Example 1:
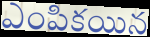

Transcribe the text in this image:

ఎంపికయిన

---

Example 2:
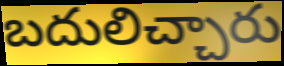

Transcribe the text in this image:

బదులిచ్చారు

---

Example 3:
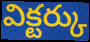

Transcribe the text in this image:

విక్టర్కు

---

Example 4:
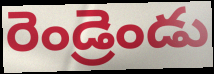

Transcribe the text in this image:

రెండ్రెండు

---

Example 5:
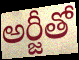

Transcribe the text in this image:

అర్జీతో